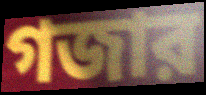
গজার